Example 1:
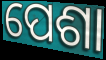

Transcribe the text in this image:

ପେଶା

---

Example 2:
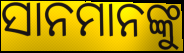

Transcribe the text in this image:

ସାନମାନଙ୍କୁ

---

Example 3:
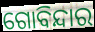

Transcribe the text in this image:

ଗୋବିନ୍ଦାର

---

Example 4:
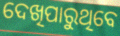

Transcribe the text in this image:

ଦେଖିପାରୁଥିବେ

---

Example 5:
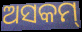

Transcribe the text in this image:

ଅସକମ୍